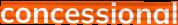
concessional